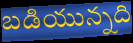
బడియున్నది